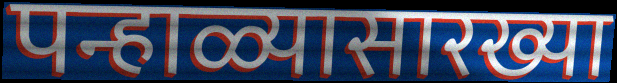
पन्हाळ्यासारख्या